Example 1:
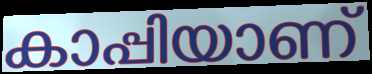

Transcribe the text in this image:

കാപ്പിയാണ്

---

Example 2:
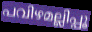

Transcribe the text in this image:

പവിഴമല്ലിപ്പൂ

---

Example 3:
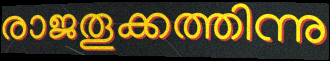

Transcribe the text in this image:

രാജതൂക്കത്തിന്നു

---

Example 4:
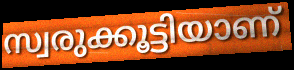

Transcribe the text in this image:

സ്വരുക്കൂട്ടിയാണ്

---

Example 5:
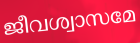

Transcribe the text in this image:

ജീവശ്വാസമേ